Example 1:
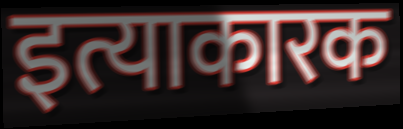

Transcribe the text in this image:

इत्याकारक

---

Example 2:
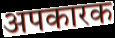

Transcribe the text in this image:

अपकारक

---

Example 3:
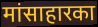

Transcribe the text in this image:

मांसाहारका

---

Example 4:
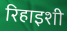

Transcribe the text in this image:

रिहाइशी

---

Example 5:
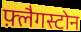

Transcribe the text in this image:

फ़्लैगस्टोन